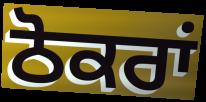
ਠੋਕਰਾਂ